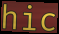
hic